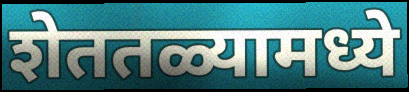
शेततळ्यामध्ये